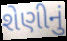
શેણીનું